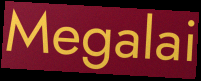
Megalai